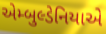
એમ્બુલ્ડેનિયાએ